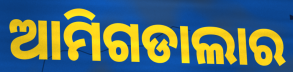
ଆମିଗଡାଲାର